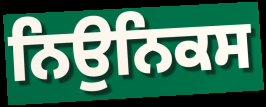
ਨਿਉਨਿਕਸ